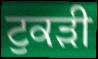
ਟੁਕਡ਼ੀ